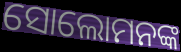
ସୋଲୋମନଙ୍କ